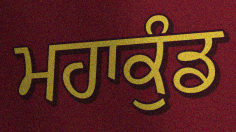
ਮਹਾਕੁੰਡ